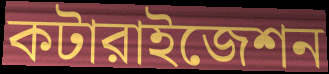
কটারাইজেশন